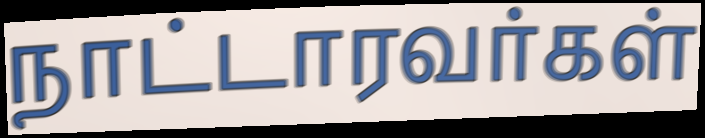
நாட்டாரவர்கள்